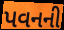
પવનની